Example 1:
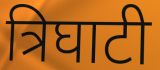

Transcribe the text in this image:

त्रिघाटी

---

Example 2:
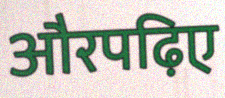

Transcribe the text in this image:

औरपढ़िए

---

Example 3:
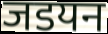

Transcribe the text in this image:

जडयन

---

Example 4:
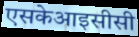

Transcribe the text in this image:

एसकेआइसीसी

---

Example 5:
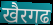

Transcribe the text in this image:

खैरगढ